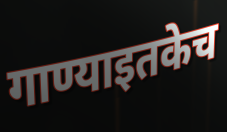
गाण्याइतकेच